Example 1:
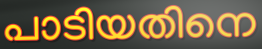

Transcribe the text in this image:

പാടിയതിനെ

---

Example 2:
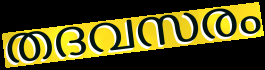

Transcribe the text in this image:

തദവസരം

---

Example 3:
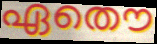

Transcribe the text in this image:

ഏതൌ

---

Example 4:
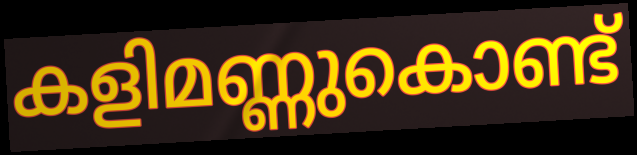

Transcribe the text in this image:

കളിമണ്ണുകൊണ്ട്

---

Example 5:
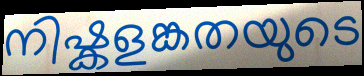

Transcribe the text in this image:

നിഷ്കളങ്കതയുടെ